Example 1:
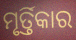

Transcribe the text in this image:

ମୃର୍ତ୍ତିକାର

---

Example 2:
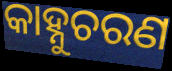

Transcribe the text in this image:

କାହ୍ନୁଚରଣ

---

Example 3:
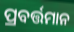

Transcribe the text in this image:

ପ୍ରବର୍ତ୍ତମାନ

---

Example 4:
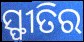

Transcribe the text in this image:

ସ୍ଫୀତିର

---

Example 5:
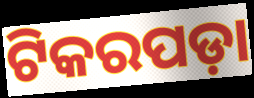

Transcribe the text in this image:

ଟିକରପଡ଼ା